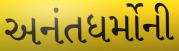
અનંતધર્મોની